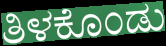
ತಿಳಕೊಂಡು